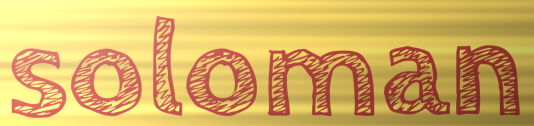
soloman